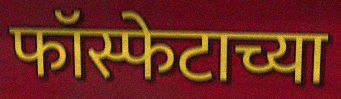
फॉस्फेटाच्या